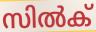
സിൽക്